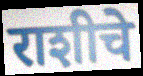
राशीचे